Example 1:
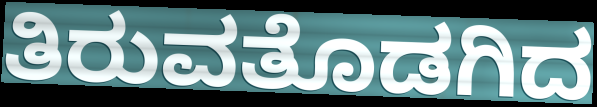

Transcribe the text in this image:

ತಿರುವತೊಡಗಿದ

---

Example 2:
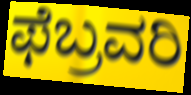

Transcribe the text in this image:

ಫೆಬ್ರವರಿ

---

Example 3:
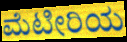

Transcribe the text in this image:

ಮೆಟೀರಿಯ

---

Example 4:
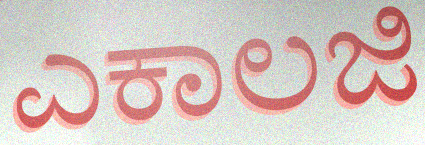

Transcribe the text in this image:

ಎಕಾಲಜಿ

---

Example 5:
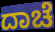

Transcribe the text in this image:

ದಾಚೆ